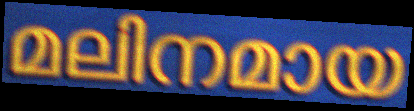
മലിനമായ